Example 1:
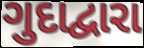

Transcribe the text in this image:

ગુદાદ્વારા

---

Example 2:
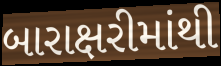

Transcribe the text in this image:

બારાક્ષરીમાંથી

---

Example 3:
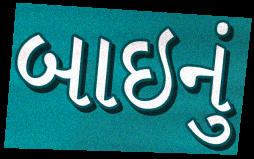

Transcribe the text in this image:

બાઇનું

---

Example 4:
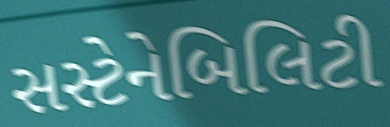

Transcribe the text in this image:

સસ્ટેનેબિલિટી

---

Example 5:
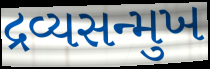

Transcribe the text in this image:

દ્રવ્યસન્મુખ